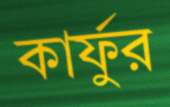
কার্ফুর